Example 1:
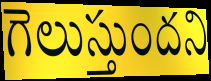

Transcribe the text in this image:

గెలుస్తుందని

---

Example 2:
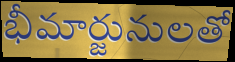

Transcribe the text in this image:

భీమార్జునులతో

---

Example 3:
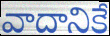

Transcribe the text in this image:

వాదానికే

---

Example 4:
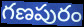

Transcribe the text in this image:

గణపురం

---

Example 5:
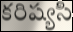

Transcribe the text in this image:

కరిష్యసి